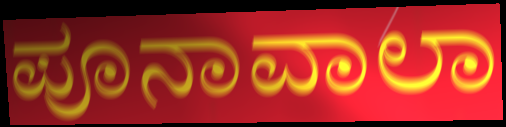
ಪೂನಾವಾಲಾ